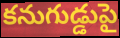
కనుగుడ్డుపై